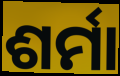
ଶର୍ମା